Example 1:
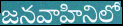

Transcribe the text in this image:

జనవాహినిలో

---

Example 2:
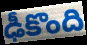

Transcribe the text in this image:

ఢీకొంది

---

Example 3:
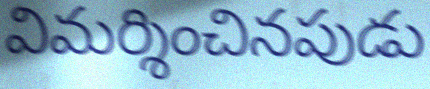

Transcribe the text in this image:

విమర్శించినపుడు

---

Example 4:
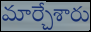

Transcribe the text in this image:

మార్చేశారు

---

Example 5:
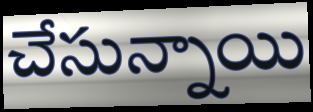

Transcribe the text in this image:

చేసున్నాయి